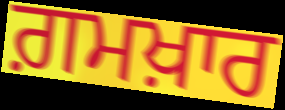
ਗ਼ਮਖ਼ਾਰ